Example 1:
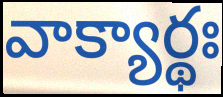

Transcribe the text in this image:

వాక్యార్థః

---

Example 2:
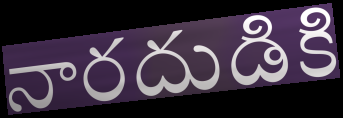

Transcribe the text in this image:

నారదుడికి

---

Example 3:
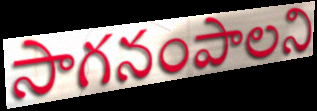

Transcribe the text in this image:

సాగనంపాలని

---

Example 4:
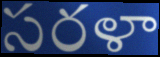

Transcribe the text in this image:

సరళా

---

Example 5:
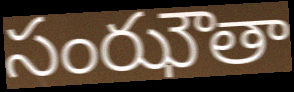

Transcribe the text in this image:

సంఝౌతా